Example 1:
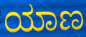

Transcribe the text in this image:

ಯಾಣ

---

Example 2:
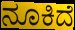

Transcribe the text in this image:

ನೂಕಿದೆ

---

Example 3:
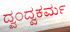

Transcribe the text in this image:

ದ್ವಂದ್ವಕರ್ಮ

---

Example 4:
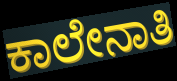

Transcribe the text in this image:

ಕಾಲೇನಾತಿ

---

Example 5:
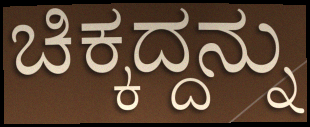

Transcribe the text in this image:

ಚಿಕ್ಕದ್ದನ್ನು